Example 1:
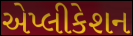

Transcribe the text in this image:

એપ્લીકેશન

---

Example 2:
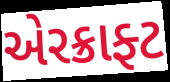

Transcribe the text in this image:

એરક્રાફ્ટ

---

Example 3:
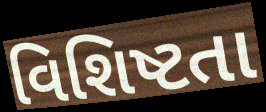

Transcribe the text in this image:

વિશિષ્ટતા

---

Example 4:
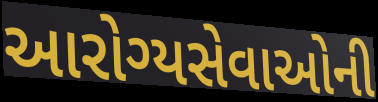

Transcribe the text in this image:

આરોગ્યસેવાઓની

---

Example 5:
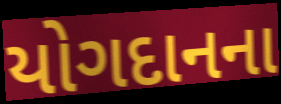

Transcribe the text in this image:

યોગદાનના